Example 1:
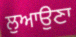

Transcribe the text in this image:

ਲੁਆਉਣਾ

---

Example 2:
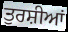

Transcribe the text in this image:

ਤੁਰਸ਼ੀਆਂ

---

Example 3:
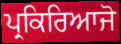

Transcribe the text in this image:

ਪ੍ਰਕਿਰਿਆਜੋ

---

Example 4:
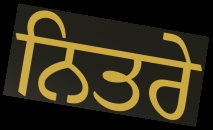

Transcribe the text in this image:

ਨਿਤਰੇ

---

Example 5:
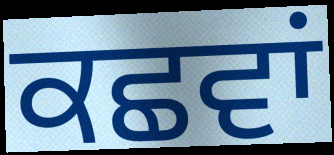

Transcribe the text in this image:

ਕਛਵਾਂ